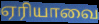
ஏரியாவை